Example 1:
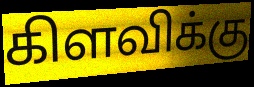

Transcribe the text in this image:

கிளவிக்கு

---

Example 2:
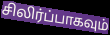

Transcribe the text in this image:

சிலிர்ப்பாகவும்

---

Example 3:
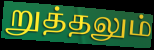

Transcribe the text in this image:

றுத்தலும்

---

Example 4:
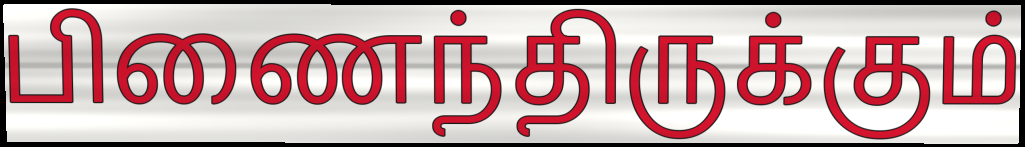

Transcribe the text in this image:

பிணைந்திருக்கும்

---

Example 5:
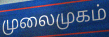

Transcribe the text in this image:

முலைமுகம்